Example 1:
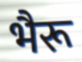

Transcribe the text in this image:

भैरू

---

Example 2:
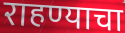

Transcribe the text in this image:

राहण्याचा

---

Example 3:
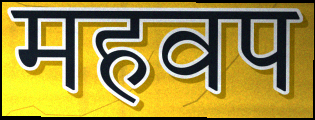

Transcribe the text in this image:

महवप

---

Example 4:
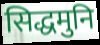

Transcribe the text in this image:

सिद्धमुनि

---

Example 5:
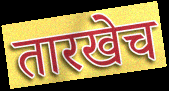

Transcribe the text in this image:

तारखेच